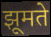
झूमते